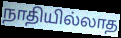
நாதியில்லாத